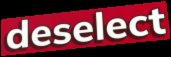
deselect